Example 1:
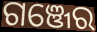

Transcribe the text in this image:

ଗଞ୍ଜେର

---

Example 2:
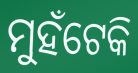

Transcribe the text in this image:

ମୁହଁଟେକି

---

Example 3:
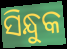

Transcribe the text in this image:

ସିନ୍ଧୁକ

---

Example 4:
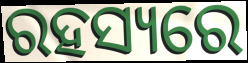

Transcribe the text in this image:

ରହସ୍ୟରେ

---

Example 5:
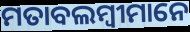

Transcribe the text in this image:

ମତାବଲମ୍ବୀମାନେ